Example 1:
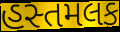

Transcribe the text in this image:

હસ્તમલક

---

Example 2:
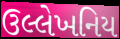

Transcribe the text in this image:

ઉલ્લેખનિય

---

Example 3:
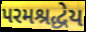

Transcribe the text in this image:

પરમશ્રદ્ધેય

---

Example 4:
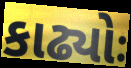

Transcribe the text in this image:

કાઢ્યોઃ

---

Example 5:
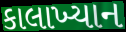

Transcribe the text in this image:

કાલાખ્યાન